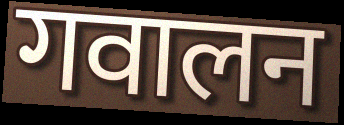
गवालन